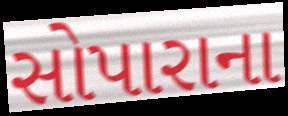
સોપારાના